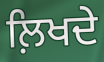
ਲ਼ਿਖਦੇ